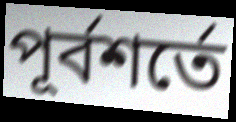
পূর্বশর্তে